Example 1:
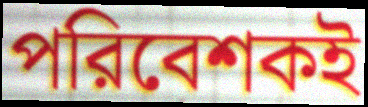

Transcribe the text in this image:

পরিবেশকই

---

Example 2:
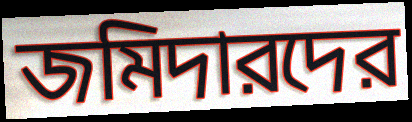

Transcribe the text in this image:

জমিদারদের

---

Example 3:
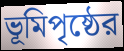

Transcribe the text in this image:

ভূমিপৃষ্ঠের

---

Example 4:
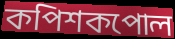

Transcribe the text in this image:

কপিশকপোল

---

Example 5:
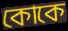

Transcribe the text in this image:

কোকে